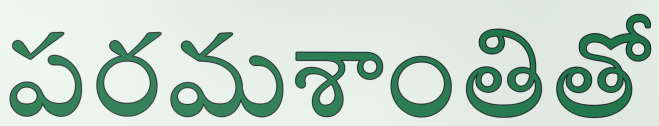
పరమశాంతితో